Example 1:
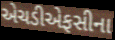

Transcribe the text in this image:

એચડીએફસીના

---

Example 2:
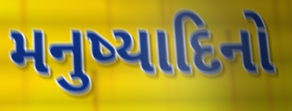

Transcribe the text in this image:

મનુષ્યાદિનો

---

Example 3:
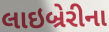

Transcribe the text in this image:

લાઇબ્રેરીના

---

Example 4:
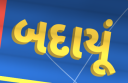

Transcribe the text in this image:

બદાયૂં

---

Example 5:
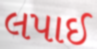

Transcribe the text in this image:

લપાઈ